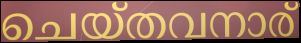
ചെയ്തവനാര്